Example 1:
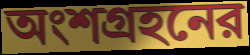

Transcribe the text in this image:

অংশগ্রহনের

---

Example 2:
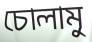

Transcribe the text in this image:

চোলামু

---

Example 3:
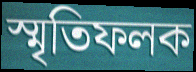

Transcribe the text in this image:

স্মৃতিফলক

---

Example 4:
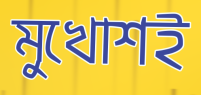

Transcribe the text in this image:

মুখোশই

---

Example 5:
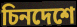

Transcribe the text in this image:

চিনদেশে